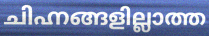
ചിഹ്നങ്ങളില്ലാത്ത